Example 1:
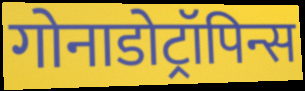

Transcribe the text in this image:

गोनाडोट्रॉपिन्स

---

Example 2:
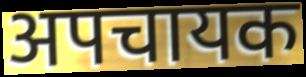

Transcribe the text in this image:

अपचायक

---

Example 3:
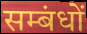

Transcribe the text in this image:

सम्बंधों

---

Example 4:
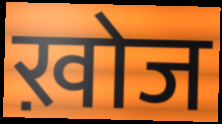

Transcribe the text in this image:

ख़ोज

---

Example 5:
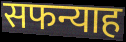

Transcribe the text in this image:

सफन्याह